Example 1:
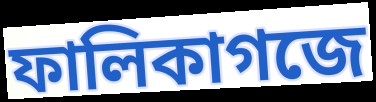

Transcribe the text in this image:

ফালিকাগজে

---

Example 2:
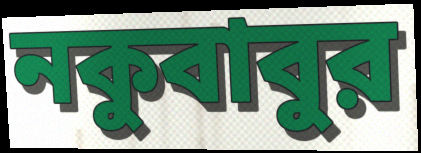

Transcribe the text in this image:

নকুবাবুর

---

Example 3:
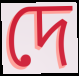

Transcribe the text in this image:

দে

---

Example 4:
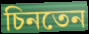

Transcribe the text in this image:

চিনতেন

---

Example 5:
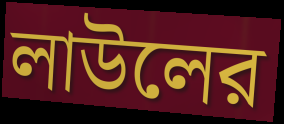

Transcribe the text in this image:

লাউলের